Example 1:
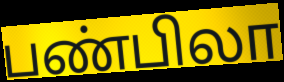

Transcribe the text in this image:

பண்பிலா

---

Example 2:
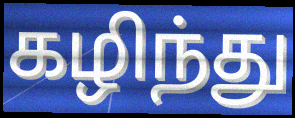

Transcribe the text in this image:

கழிந்து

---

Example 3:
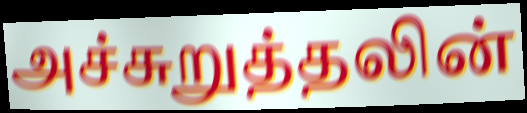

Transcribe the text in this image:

அச்சுறுத்தலின்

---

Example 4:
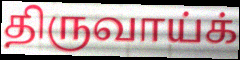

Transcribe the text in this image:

திருவாய்க்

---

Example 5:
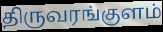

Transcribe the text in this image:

திருவரங்குளம்